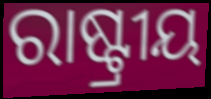
ରାଷ୍ଟ୍ରୀୟ